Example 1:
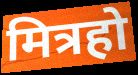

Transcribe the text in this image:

मित्रहो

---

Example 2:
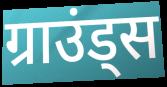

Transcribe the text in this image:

ग्राउंड्स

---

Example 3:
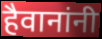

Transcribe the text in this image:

हैवानांनी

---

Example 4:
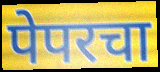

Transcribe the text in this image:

पेपरचा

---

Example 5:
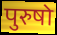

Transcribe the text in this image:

पुरुषो